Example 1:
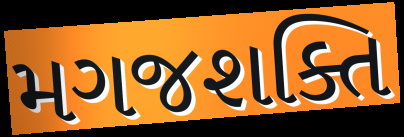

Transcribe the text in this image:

મગજશક્તિ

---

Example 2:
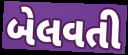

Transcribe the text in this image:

બેલવતી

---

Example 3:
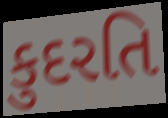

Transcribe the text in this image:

કુદરતિ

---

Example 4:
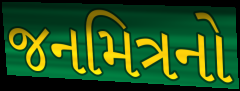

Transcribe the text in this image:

જનમિત્રનો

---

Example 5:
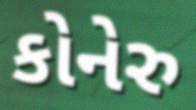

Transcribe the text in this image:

કોનેરુ